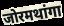
जोरमथांगा